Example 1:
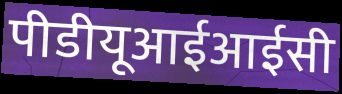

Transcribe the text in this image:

पीडीयूआईआईसी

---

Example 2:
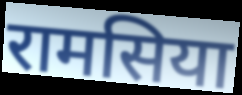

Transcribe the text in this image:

रामसिया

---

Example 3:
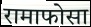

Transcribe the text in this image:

रामाफोसा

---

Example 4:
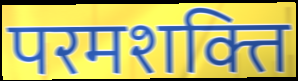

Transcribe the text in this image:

परमशक्ति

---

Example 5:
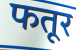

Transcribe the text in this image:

फतूर